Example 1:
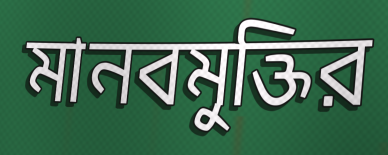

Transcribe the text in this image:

মানবমুক্তির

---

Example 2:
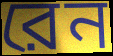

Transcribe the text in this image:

রেন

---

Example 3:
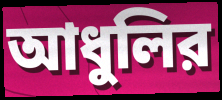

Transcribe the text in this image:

আধুলির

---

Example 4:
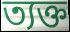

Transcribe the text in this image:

ত্যক্ত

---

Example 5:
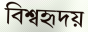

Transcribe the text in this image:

বিশ্বহৃদয়